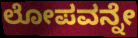
ಲೋಪವನ್ನೇ